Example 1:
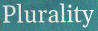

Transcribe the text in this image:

Plurality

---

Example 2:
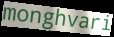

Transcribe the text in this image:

monghvari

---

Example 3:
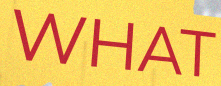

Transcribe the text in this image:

WHAT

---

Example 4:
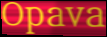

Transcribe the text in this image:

Opava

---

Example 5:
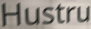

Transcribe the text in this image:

Hustru